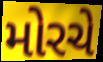
મોરચે